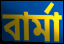
বার্মা